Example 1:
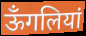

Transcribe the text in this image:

ऊँगलियां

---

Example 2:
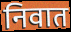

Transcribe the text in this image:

निवात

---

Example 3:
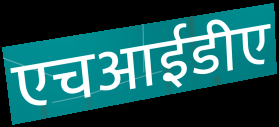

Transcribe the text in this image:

एचआईडीए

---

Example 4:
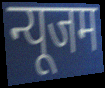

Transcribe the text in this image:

न्यूजम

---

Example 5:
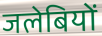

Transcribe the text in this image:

जलेबियों